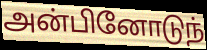
அன்பினோடுந்